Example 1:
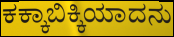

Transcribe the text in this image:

ಕಕ್ಕಾಬಿಕ್ಕಿಯಾದನು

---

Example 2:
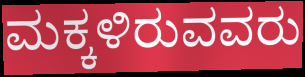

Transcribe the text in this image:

ಮಕ್ಕಳಿರುವವರು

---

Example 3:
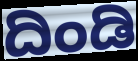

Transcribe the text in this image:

ದಿಂಡಿ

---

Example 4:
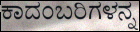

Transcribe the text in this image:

ಕಾದಂಬರಿಗಳನ್ನ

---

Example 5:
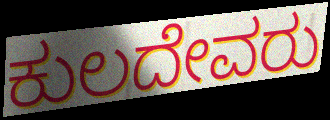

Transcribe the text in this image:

ಕುಲದೇವರು